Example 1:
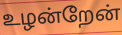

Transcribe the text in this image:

உழன்றேன்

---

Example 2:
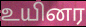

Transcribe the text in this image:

உயினர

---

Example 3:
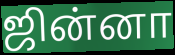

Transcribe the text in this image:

ஜின்னா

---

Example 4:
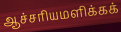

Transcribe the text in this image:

ஆச்சரியமளிக்கக்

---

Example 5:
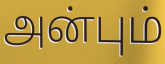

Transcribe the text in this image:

அன்பும்